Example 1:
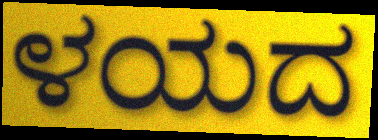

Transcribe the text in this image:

ಳಯದ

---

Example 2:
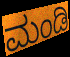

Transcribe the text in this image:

ಮಂಡಿ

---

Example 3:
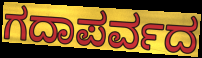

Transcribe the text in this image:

ಗದಾಪರ್ವದ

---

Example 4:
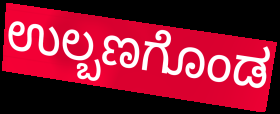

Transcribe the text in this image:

ಉಲ್ಬಣಗೊಂಡ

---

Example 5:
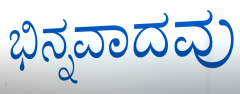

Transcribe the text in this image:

ಭಿನ್ನವಾದವು